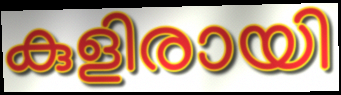
കുളിരായി